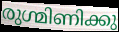
രുഗ്മിണിക്കു